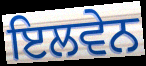
ਇਲਵੇਨ